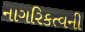
નાગરિકત્વની